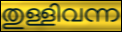
തുള്ളിവന്ന